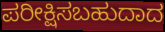
ಪರೀಕ್ಷಿಸಬಹುದಾದ